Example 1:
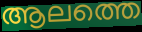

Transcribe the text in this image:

ആലത്തെ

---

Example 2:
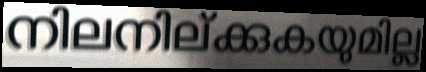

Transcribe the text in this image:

നിലനില്ക്കുകയുമില്ല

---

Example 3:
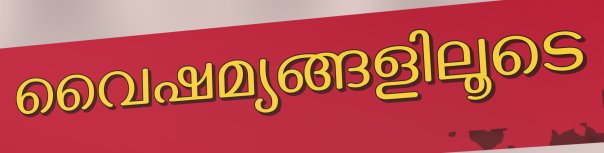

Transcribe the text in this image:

വൈഷമ്യങ്ങളിലൂടെ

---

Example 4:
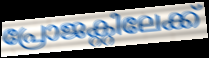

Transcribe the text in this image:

പ്രോജക്റ്റിലേക്ക്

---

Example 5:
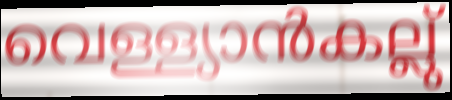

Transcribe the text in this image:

വെള്ള്യാൻകല്ലു്